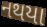
નથયા